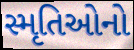
સ્મૃતિઓનો